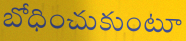
బోధించుకుంటూ